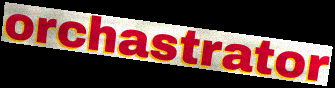
orchastrator